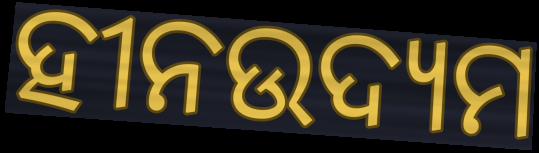
ହୀନଉଦ୍ୟମ